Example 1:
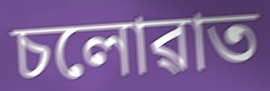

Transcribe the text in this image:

চলোৱাত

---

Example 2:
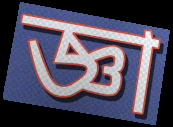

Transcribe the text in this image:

জ্ঞা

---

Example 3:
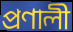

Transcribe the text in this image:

প্ৰণালী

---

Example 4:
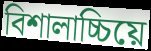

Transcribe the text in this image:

বিশালাচ্চিয়ে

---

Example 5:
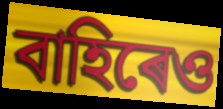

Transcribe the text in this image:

বাহিৰেও